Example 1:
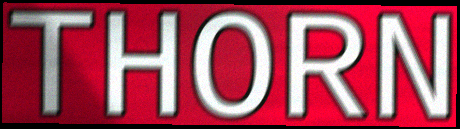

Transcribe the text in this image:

THORN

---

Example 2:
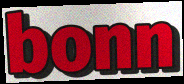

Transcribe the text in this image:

bonn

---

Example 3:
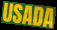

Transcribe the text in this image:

USADA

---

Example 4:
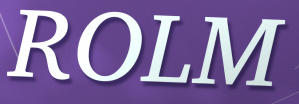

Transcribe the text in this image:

ROLM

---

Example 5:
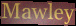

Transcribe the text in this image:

Mawley